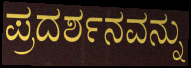
ಪ್ರದರ್ಶನವನ್ನು